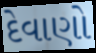
દેવાણો